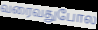
வரைவதுபோல